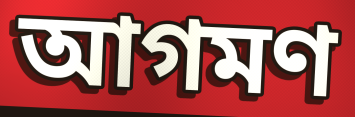
আগমণ